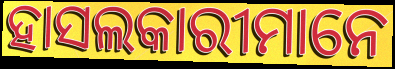
ହାସଲକାରୀମାନେ